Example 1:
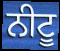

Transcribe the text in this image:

ਨੀਟੂ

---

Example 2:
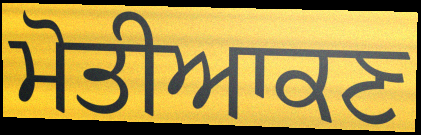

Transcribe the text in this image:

ਮੋਤੀਆਕਣ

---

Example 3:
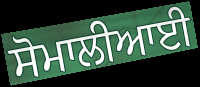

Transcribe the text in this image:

ਸੋਮਾਲੀਆਈ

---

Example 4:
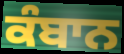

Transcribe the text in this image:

ਕੰਬਾਨ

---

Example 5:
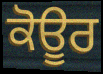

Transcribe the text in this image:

ਕੋਊਰ